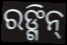
ରଙ୍ଗିନ୍